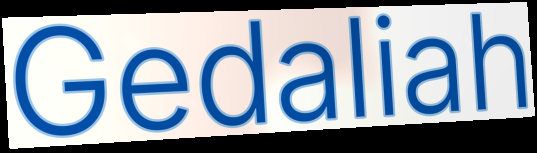
Gedaliah